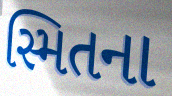
સ્મિતના